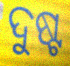
ଦୁଷ୍ଟ